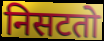
निसटतो